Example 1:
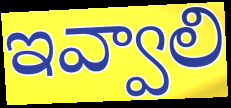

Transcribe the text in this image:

ఇవ్వాలి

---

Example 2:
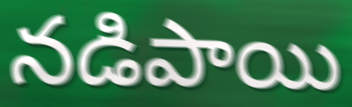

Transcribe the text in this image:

నడిపాయి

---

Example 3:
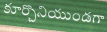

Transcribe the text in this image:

కూర్చొనియుండగా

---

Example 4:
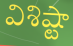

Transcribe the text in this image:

విశిష్టా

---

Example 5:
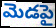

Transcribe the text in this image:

మెడపై